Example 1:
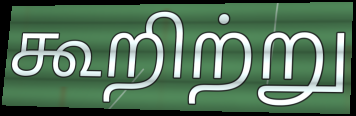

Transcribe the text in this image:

கூறிற்று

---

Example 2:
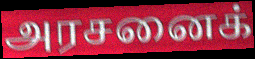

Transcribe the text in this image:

அரசனைக்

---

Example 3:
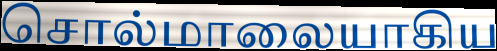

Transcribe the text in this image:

சொல்மாலையாகிய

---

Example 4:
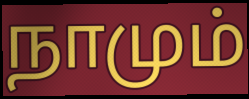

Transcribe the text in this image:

நாமும்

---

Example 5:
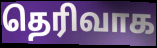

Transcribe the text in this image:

தெரிவாக